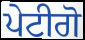
ਪੇਟੀਗੋ